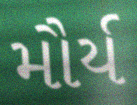
મૌર્ય